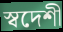
স্বদেশী